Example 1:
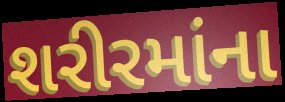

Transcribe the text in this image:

શરીરમાંના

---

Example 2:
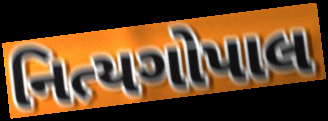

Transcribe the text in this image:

નિત્યગોપાલ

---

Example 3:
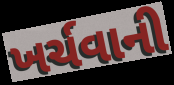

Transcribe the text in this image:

ખર્ચવાની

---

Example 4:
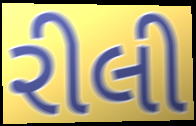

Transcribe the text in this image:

રીલી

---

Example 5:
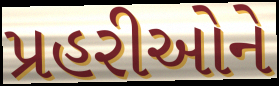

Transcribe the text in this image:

પ્રહરીઓને